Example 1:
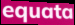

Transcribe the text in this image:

equata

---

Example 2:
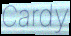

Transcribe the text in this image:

Cardy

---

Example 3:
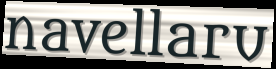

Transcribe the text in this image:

navellaru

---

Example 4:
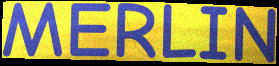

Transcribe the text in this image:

MERLIN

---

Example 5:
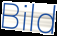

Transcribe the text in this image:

Bild